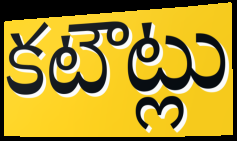
కటౌట్లు